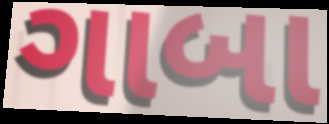
ગાબા